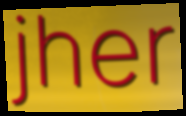
jher